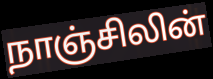
நாஞ்சிலின்